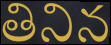
తినిన